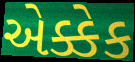
એક્કેક